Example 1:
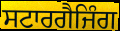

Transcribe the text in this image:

ਸਟਾਰਗੈਜਿੰਗ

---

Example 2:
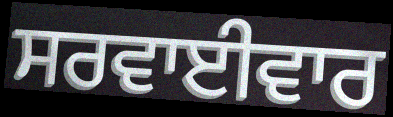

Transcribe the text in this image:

ਸਰਵਾਈਵਾਰ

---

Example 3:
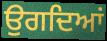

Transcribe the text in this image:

ਉਗਦਿਆਂ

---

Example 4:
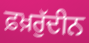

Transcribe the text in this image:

ਫ਼ਖ਼ਰੁੱਦੀਨ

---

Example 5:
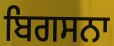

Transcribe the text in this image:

ਬਿਗਸਨਾ